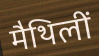
मैथिलीं